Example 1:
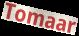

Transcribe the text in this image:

Tomaar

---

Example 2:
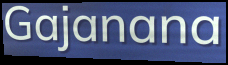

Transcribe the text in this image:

Gajanana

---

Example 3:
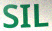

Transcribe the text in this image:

SIL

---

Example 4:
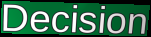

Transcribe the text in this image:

Decision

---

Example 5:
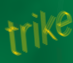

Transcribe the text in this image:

trike